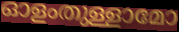
ഓളംതുള്ളാമോ